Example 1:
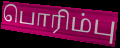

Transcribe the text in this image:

பொரிம்பு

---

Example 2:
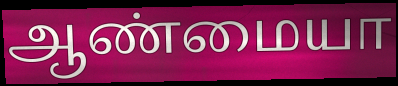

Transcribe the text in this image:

ஆண்மையா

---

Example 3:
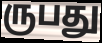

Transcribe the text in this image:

ருபது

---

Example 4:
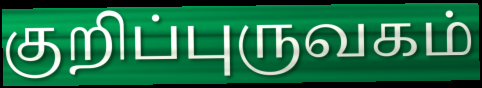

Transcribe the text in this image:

குறிப்புருவகம்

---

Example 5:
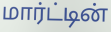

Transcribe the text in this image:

மார்ட்டின்